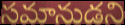
సమానుడని